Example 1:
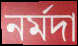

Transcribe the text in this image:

নৰ্মদা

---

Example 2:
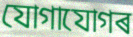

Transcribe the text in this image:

যোগাযোগৰ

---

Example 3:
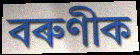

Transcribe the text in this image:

বৰুণীক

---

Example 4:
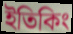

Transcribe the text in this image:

ইতিকিং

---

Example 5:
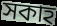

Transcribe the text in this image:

সকাহ